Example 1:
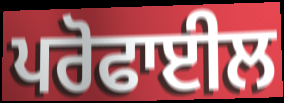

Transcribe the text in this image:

ਪਰੋਫਾਈਲ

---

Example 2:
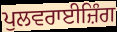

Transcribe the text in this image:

ਪੁਲਵਰਾਈਜ਼ਿੰਗ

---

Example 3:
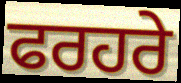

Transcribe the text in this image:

ਫਰਹਰੇ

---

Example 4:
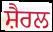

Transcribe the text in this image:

ਸ਼ੈਰਲ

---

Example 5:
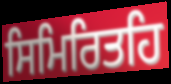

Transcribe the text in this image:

ਸਿਮਿਰਿਤਹਿ